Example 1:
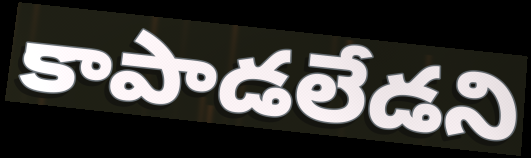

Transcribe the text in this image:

కాపాడలేడని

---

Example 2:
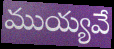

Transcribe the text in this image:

ముయ్యవే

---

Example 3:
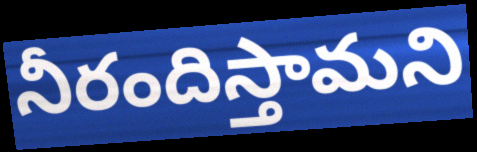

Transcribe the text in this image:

నీరందిస్తామని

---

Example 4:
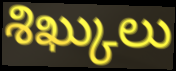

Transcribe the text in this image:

శిఖ్కులు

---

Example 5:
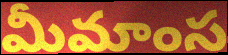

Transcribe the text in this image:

మీమాంస